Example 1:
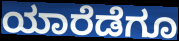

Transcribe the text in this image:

ಯಾರೆಡೆಗೂ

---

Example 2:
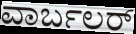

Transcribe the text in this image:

ವಾರ್ಬಲರ್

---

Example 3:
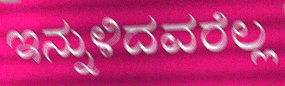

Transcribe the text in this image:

ಇನ್ನುಳಿದವರೆಲ್ಲ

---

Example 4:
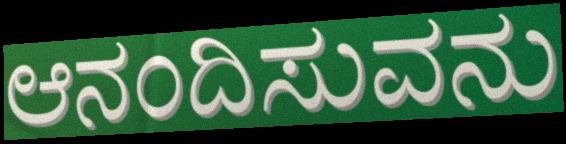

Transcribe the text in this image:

ಆನಂದಿಸುವನು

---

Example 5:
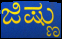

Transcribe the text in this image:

ಜಿಷ್ಣು